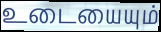
உடையையும்